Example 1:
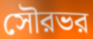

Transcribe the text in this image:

সৌরভর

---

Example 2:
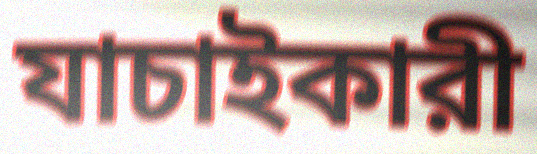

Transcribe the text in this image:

যাচাইকারী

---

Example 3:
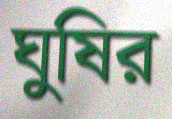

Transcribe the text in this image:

ঘুষির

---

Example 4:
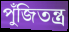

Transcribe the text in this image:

পুঁজিতন্ত্র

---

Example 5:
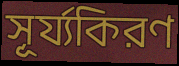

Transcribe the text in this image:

সূর্য্যকিরণ